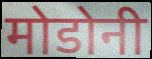
मोडोनी